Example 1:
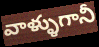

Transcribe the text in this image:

వాళ్ళుగానీ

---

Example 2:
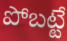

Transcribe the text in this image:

పోబట్టే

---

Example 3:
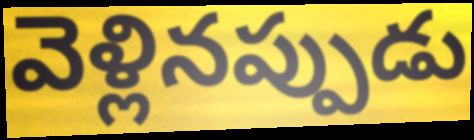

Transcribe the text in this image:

వెళ్లినప్పుడు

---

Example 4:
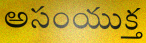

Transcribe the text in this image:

అసంయుక్త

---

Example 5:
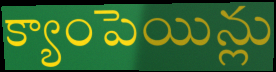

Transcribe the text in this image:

క్యాంపెయిన్లు